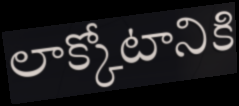
లాక్కోటానికి